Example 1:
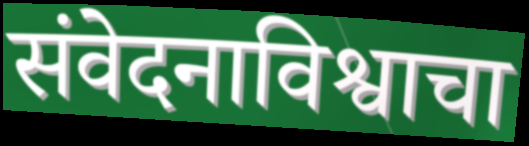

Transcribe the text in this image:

संवेदनाविश्वाचा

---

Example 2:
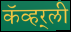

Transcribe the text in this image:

कॅव्हर्ली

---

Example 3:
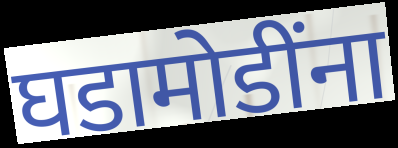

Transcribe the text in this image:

घडामोडींना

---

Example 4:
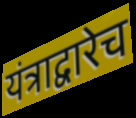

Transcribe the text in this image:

यंत्राद्वारेच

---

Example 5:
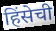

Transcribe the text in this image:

हिंसेची